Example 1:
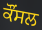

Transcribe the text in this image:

ਕੌਂਸਲ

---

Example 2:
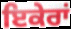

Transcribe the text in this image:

ਇਕੇਰਾਂ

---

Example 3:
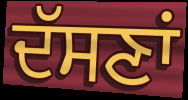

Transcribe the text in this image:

ਦੱਸਣਾਂ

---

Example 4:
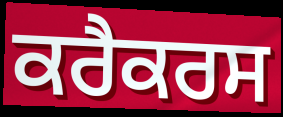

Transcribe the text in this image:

ਕਰੈਕਰਸ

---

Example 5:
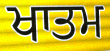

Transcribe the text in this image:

ਖਾਤਮ